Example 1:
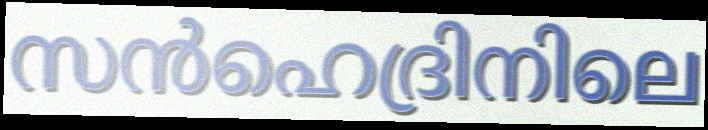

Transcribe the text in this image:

സൻഹെദ്രിനിലെ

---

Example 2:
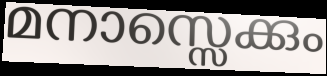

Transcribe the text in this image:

മനാസ്സെക്കും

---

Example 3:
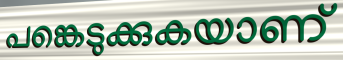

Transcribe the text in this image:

പങ്കെടുക്കുകയാണ്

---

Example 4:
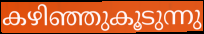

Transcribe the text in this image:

കഴിഞ്ഞുകൂടുന്നു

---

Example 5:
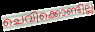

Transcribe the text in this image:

ചെവിക്കൊണ്ടില്ല